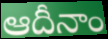
ఆదీనాం